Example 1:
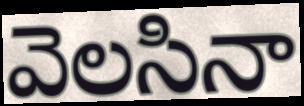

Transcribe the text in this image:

వెలసినా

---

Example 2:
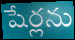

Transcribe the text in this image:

షేర్లను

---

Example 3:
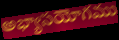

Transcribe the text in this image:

అభ్యాసయోగము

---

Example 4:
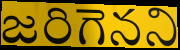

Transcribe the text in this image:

జరిగెనని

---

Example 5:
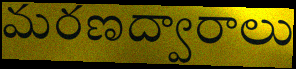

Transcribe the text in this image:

మరణద్వారాలు